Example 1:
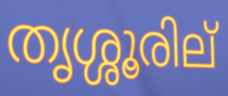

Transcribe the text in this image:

തൃശ്ശൂരില്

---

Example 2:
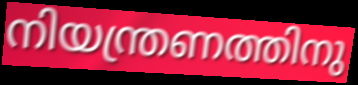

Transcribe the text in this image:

നിയന്ത്രണത്തിനു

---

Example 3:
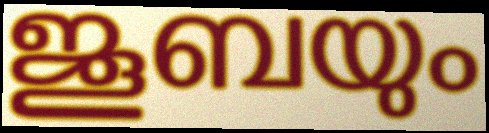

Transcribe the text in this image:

ജൂബയും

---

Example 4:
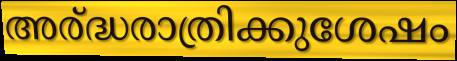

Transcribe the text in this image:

അര്ദ്ധരാത്രിക്കുശേഷം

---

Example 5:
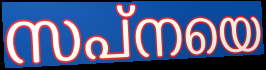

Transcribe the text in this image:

സപ്‌നയെ